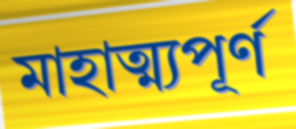
মাহাত্ম্যপূর্ণ